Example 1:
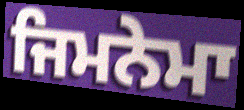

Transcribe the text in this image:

ਜਿਮਨੇਮਾ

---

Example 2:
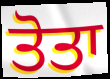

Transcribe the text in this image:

ਤੋਤਾ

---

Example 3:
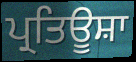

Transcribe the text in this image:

ਪ੍ਰਤਿਊਸ਼ਾ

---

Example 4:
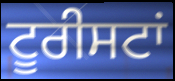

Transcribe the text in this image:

ਟੂਰੀਸਟਾਂ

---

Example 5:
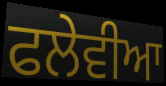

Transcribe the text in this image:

ਫਲੇਵੀਆ